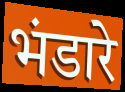
भंडारे